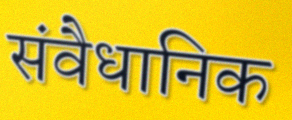
संवैधानिक